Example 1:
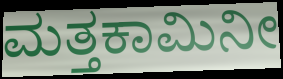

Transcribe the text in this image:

ಮತ್ತಕಾಮಿನೀ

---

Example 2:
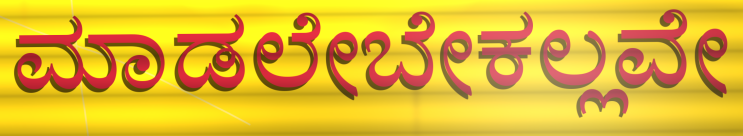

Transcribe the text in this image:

ಮಾಡಲೇಬೇಕಲ್ಲವೇ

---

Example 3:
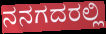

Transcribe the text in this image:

ನನಗದರಲ್ಲಿ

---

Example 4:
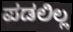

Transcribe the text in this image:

ಪಡಲಿಲ್ಲ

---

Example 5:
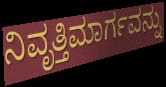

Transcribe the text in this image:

ನಿವೃತ್ತಿಮಾರ್ಗವನ್ನು